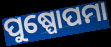
ପୁଷ୍ପୋପମା